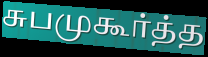
சுபமுகூர்த்த